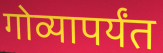
गोव्यापर्यंत